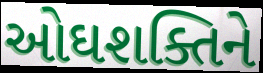
ઓઘશક્તિને